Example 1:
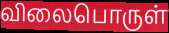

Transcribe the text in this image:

விலைபொருள்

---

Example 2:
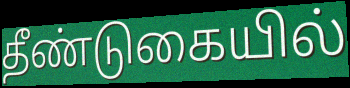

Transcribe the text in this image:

தீண்டுகையில்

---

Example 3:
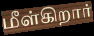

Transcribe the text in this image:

மீள்கிறார்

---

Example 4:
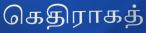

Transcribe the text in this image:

கெதிராகத்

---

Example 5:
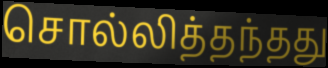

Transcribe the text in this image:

சொல்லித்தந்தது